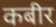
कबीर